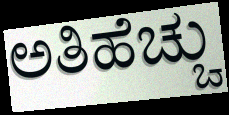
ಅತಿಹೆಚ್ಚು